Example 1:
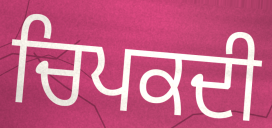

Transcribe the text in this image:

ਚਿਪਕਦੀ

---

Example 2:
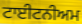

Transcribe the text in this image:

ਟਾਈਟਨੀਅਮ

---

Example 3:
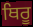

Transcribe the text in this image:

ਥਿਰੂ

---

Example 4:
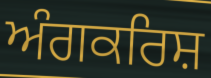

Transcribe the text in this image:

ਅੰਗਕਰਿਸ਼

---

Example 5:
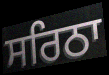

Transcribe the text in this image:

ਸਰਿਠਾ